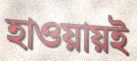
হাওয়ায়ই